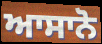
ਆਸਾਨੋ